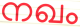
നഖം